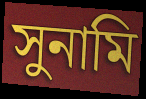
সুনামি